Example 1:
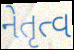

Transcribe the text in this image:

નેતૃત્વ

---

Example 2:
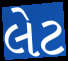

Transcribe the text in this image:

લેટ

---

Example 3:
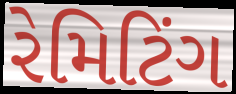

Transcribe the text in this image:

રેમિટિંગ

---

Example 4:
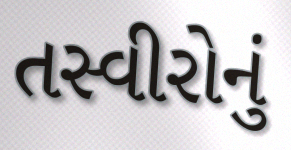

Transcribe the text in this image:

તસ્વીરોનું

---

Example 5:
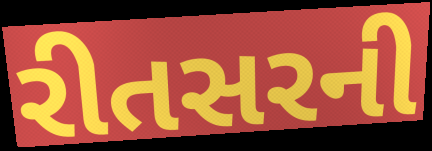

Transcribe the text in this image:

રીતસરની